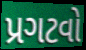
પ્રગટવો